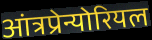
आंत्रप्रेन्योरियल